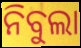
ନିବୁଲା